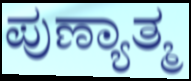
ಪುಣ್ಯಾತ್ಮ